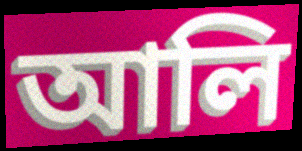
আলি